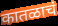
कातळाचं